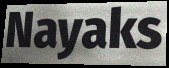
Nayaks